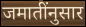
जमातींनुसार